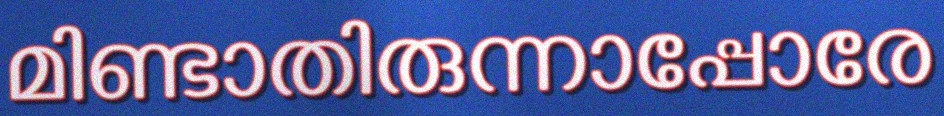
മിണ്ടാതിരുന്നാപ്പോരേ